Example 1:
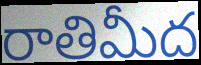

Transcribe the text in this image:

రాతిమీద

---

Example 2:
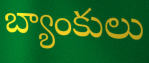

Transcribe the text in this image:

బ్యాంకులు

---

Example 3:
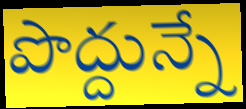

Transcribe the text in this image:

పొద్దున్నే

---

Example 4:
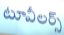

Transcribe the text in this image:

టూవీలర్స్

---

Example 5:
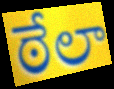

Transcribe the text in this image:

ఠేలా